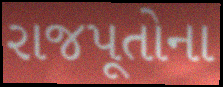
રાજપૂતોના